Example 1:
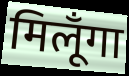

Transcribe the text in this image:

मिलूँगा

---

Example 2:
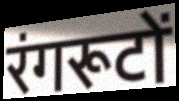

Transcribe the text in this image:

रंगरूटों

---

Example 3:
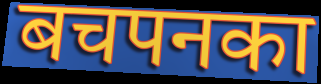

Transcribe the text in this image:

बचपनका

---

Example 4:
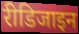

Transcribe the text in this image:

रीडिजाइन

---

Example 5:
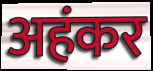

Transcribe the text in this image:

अहंकर